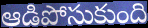
ఆడిపోసుకుంది